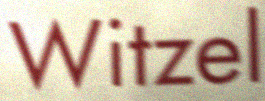
Witzel